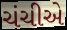
ચંચીએ